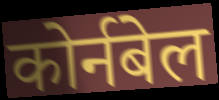
कोर्नबेल